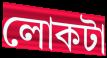
লোকটা